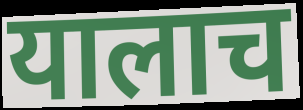
यालाच